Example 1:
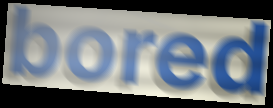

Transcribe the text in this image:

bored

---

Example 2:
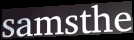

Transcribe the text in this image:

samsthe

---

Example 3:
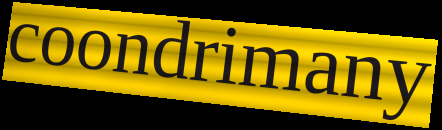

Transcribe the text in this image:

coondrimany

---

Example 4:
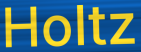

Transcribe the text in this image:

Holtz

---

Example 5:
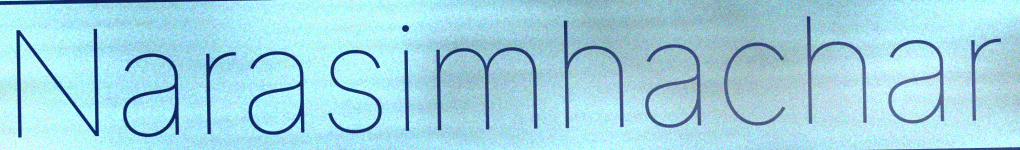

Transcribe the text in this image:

Narasimhachar